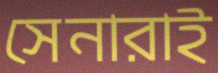
সেনারাই